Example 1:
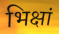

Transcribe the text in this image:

भिक्षां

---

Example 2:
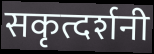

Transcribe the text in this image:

सकृत्दर्शनी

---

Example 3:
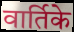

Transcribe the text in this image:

वार्तिके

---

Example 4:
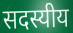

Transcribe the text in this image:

सदस्यीय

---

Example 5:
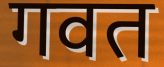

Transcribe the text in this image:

गवत